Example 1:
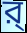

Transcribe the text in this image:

র্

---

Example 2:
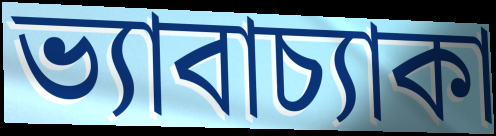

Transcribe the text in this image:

ভ্যাবাচ্যাকা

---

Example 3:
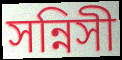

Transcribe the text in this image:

সন্নিসী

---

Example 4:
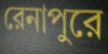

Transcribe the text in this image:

রেনাপুরে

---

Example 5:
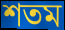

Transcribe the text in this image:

শতম